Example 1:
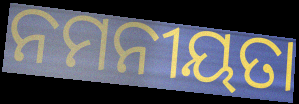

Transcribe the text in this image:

ନମନୀୟତା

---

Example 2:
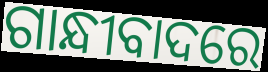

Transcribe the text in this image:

ଗାନ୍ଧୀବାଦରେ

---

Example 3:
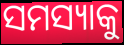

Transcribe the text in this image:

ସମସ୍ଯାକୁ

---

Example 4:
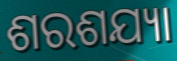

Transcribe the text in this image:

ଶରଶଯ୍ୟା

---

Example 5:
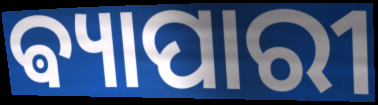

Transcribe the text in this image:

ଵ୍ୟାପାରୀ